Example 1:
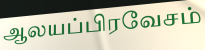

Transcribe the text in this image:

ஆலயப்பிரவேசம்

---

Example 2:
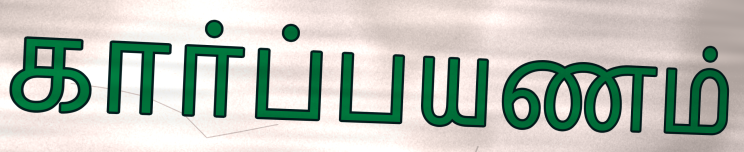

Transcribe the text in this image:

கார்ப்பயணம்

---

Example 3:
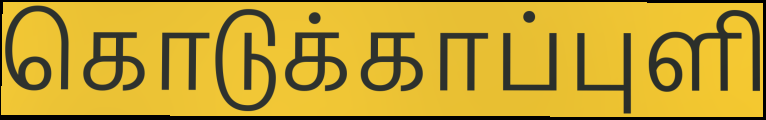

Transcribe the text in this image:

கொடுக்காப்புளி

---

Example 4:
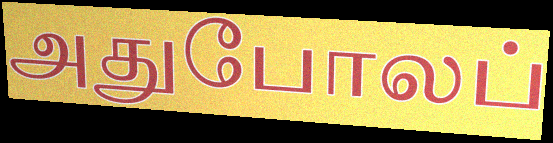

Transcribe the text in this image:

அதுபோலப்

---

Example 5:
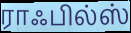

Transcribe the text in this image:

ராஃபில்ஸ்